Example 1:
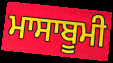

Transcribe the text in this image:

ਮਾਸਾਬੂਮੀ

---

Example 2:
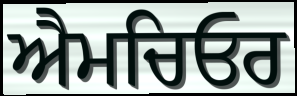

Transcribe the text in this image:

ਐਮਚਿਓਰ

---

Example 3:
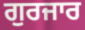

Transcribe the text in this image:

ਗੁਰਜਾਰ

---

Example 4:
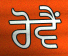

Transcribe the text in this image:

ਰੋਵੈਂ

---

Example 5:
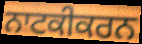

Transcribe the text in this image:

ਨਾਟਕੀਕਰਨ